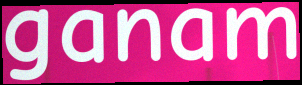
ganam